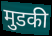
मुडकी